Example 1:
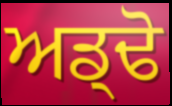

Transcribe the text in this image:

ਅਡ੍ਢੋ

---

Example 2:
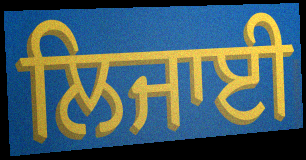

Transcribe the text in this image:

ਲਿਜਾਈ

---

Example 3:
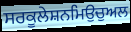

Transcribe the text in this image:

ਸਰਕੂਲੇਸ਼ਨਮਿਉਚੁਅਲ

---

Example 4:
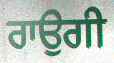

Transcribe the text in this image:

ਰਾਉਗੀ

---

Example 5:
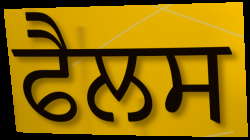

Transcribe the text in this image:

ਫੈਲਸ